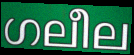
ഗലീല